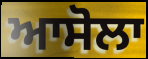
ਆਸੋਲਾ